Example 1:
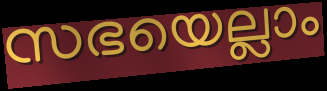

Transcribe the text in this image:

സഭയെല്ലാം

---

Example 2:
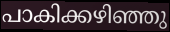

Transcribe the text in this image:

പാകിക്കഴിഞ്ഞു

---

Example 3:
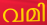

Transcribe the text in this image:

വമി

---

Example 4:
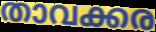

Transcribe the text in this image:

താവക്കര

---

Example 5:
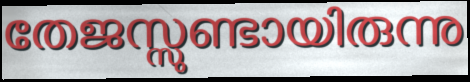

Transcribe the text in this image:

തേജസ്സുണ്ടായിരുന്നു